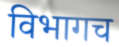
विभागच